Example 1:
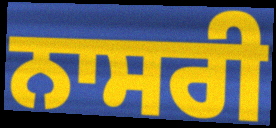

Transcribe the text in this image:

ਨਾਸਰੀ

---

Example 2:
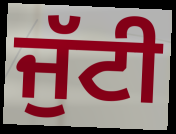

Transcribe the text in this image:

ਜੁੱਟੀ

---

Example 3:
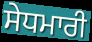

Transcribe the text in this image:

ਸੇਧਮਾਰੀ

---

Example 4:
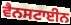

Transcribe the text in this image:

ਵੈਨਸਟਾਈਨ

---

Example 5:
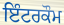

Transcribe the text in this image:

ਇੰਟਰਕੌਮ